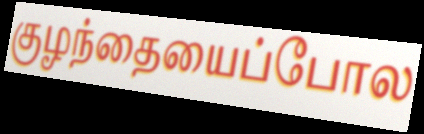
குழந்தையைப்போல